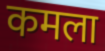
कमला